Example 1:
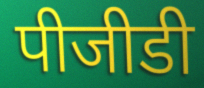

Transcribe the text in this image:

पीजीडी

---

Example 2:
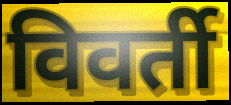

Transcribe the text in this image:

विवर्ती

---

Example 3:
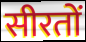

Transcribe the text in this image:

सीरतों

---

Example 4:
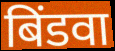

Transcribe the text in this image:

बिंडवा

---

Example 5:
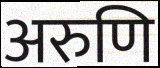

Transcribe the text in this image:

अरुणि